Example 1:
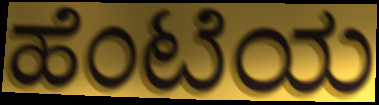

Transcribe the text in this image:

ಹೆಂಟೆಯ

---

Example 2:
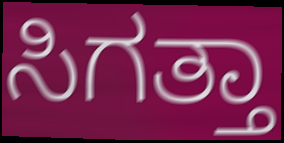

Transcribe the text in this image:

ಸಿಗತ್ತಾ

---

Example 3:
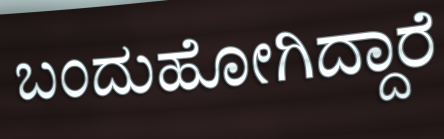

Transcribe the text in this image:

ಬಂದುಹೋಗಿದ್ದಾರೆ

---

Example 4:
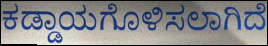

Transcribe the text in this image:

ಕಡ್ಡಾಯಗೊಳಿಸಲಾಗಿದೆ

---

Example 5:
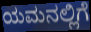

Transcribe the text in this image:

ಯಮನಲ್ಲಿಗೆ